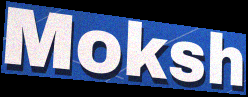
Moksh